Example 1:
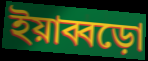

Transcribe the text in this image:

ইয়াব্বড়ো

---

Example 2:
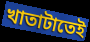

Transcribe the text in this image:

খাতাটাতেই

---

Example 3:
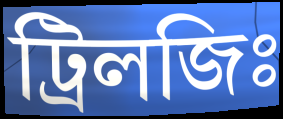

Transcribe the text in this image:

ট্রিলজিঃ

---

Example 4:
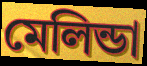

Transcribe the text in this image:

মেলিন্ডা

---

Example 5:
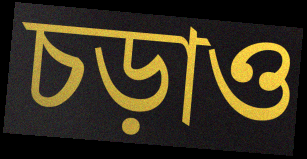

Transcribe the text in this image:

চড়াও